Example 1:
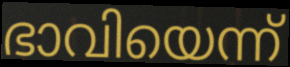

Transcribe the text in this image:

ഭാവിയെന്ന്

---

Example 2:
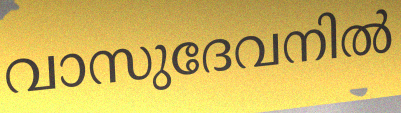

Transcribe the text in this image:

വാസുദേവനിൽ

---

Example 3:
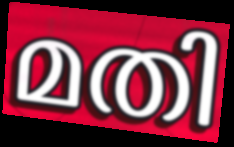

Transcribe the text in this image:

മതി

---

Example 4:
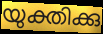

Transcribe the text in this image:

യുക്തിക്കു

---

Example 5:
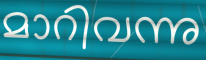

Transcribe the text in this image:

മാറിവന്നു